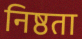
निष्ठता